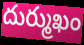
దుర్ముఖం